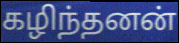
கழிந்தனன்